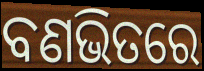
ବଣଭିତରେ